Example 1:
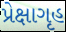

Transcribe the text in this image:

પ્રેક્ષાગૃહ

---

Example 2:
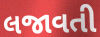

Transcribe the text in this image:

લજાવતી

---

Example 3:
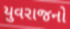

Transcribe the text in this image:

યુવરાજનો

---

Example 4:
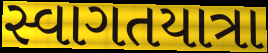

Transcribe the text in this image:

સ્વાગતયાત્રા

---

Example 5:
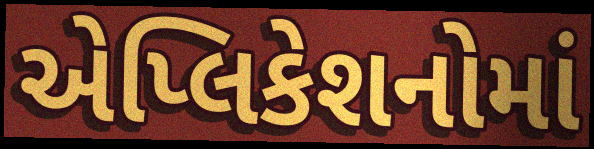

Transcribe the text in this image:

એપ્લિકેશનોમાં